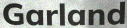
Garland